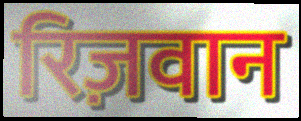
रिज़वान